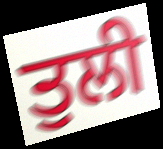
ਤੁਲੀ